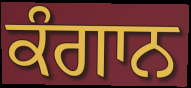
ਕੰਗਾਨ